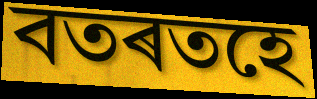
বতৰতহে